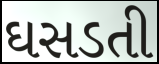
ઘસડતી